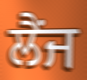
ਲੈਂਜ